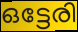
ഒട്ടേരി